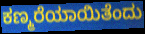
ಕಣ್ಮರೆಯಾಯಿತೆಂದು